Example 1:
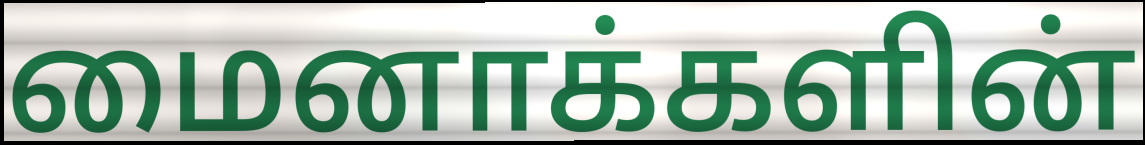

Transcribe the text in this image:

மைனாக்களின்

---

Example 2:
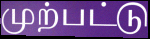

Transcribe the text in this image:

முற்பட்டு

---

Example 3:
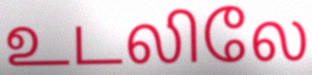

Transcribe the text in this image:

உடலிலே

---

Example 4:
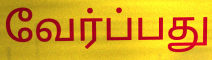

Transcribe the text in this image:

வேர்ப்பது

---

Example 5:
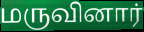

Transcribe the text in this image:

மருவினார்